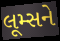
લૂમ્સને